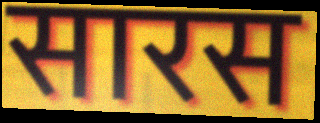
सारस